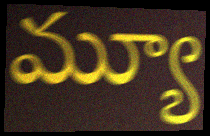
మ్యూ